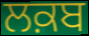
ਲਕ਼ਬ